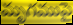
మృగముపై